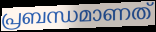
പ്രബന്ധമാണത്